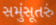
સમુંસૂતરું